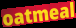
oatmeal